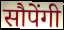
सौपेंगी